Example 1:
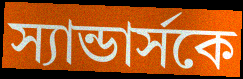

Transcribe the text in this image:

স্যান্ডার্সকে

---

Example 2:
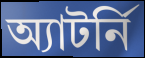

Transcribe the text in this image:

অ্যাটর্নি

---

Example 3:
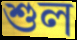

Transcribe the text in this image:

শুল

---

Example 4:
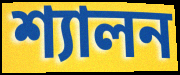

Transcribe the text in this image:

শ্যালন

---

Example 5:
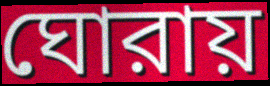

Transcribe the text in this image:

ঘোরায়